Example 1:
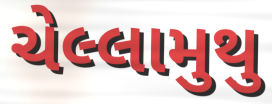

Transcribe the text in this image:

ચેલ્લામુથુ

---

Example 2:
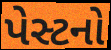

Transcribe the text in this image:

પેસ્ટનો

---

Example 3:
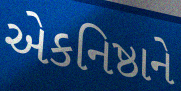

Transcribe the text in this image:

એકનિષ્ઠાને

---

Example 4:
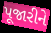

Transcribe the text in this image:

પૂજારીને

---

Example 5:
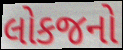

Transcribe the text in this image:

લોકજનો